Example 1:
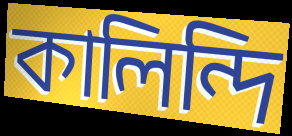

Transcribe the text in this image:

কালিন্দি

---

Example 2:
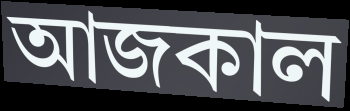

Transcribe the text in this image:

আজকাল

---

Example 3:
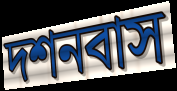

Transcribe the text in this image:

দশনবাস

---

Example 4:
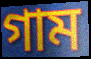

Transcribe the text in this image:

গাম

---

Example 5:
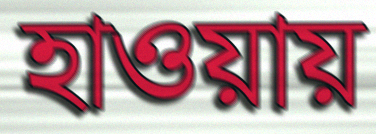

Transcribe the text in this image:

হাওয়ায়